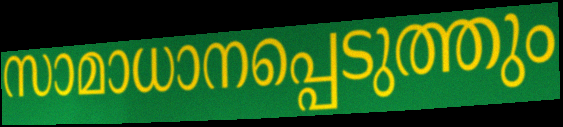
സാമാധാനപ്പെടുത്തും